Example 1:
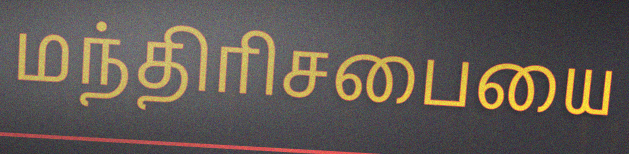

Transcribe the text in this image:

மந்திரிசபையை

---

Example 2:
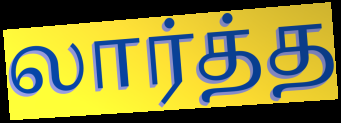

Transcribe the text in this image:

லார்த்த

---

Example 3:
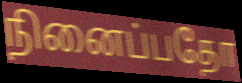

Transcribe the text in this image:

நினைப்பதோ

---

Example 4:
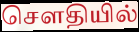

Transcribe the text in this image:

செளதியில்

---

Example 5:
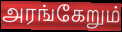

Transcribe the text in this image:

அரங்கேறும்